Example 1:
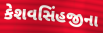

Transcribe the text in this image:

કેશવસિંહજીના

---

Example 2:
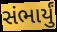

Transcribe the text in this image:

સંભાર્યું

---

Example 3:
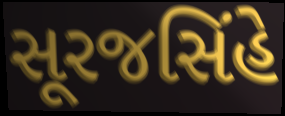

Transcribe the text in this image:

સૂરજસિંહે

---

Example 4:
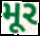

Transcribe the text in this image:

મૂર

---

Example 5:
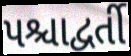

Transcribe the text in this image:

પશ્ચાદ્વર્તી